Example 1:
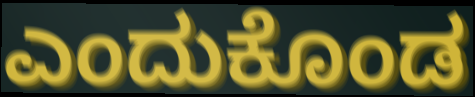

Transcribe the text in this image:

ಎಂದುಕೊಂಡ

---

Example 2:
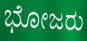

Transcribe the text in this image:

ಭೋಜರು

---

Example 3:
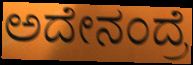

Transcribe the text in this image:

ಅದೇನಂದ್ರೆ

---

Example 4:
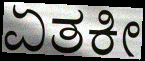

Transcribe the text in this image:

ಏತಕೀ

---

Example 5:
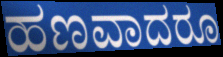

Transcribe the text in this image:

ಹಣವಾದರೂ